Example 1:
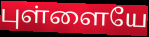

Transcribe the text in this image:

புள்ளையே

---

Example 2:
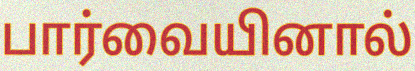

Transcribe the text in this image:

பார்வையினால்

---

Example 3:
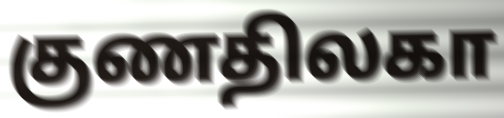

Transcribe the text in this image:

குணதிலகா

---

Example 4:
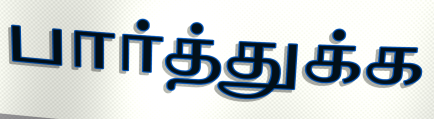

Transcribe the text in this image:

பார்த்துக்க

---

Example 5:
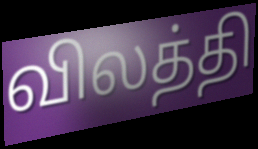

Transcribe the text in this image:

விலத்தி